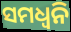
ସମଧ୍ୱନି